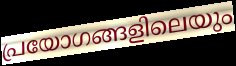
പ്രയോഗങ്ങളിലെയും